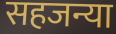
सहजन्या